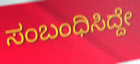
ಸಂಬಂಧಿಸಿದ್ದೇ